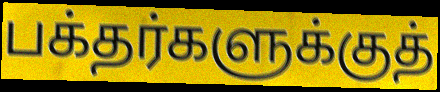
பக்தர்களுக்குத்